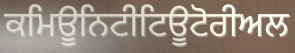
ਕਮਿਊਨਿਟੀਟਿਊਟੋਰੀਅਲ